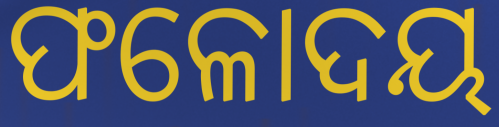
ଫଳୋଦୟ